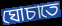
ঘোচাতে